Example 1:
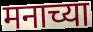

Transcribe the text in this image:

मनाच्या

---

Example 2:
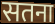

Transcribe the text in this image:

सतना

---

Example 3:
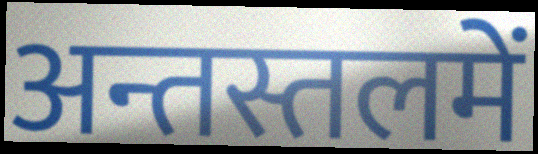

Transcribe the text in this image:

अन्तस्तलमें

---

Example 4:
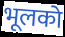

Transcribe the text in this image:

भूलको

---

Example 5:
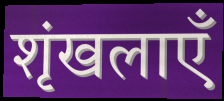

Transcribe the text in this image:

शृंखलाएँ